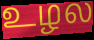
உழல